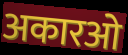
अकारओ